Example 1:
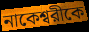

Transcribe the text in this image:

নাকেশ্বরীকে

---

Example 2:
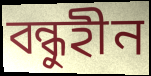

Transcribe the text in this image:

বন্ধুহীন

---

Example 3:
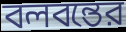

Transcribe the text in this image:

বলবন্তের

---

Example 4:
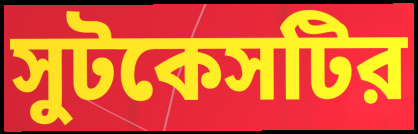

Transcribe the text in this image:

সুটকেসটির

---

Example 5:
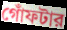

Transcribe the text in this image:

গোঁফটার